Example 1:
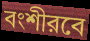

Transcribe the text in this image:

বংশীরবে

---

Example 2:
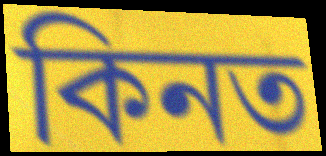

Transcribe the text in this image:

কিনত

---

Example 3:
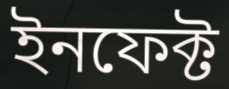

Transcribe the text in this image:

ইনফেক্ট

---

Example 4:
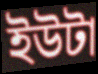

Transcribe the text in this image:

ইউটা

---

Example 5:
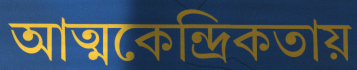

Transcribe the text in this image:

আত্মকেন্দ্রিকতায়